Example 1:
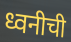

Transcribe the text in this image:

ध्वनीची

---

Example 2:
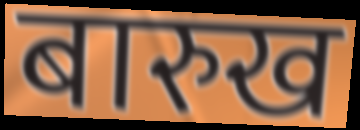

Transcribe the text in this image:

बारुख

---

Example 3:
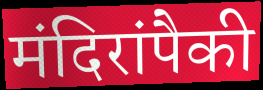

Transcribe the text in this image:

मंदिरांपैकी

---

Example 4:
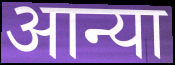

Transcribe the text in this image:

आन्या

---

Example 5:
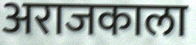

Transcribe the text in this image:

अराजकाला